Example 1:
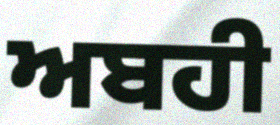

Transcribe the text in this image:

ਅਬਹੀ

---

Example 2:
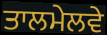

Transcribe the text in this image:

ਤਾਲਮੇਲਵੇ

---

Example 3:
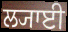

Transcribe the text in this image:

ਲ੍ਯਾਈ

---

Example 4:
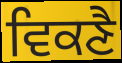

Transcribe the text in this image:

ਵਿਕਣੈ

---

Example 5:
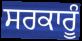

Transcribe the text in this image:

ਸਰਕਾਰੂੰ